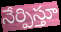
నేర్పిస్తూ